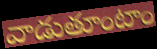
వాడుతూంటాం